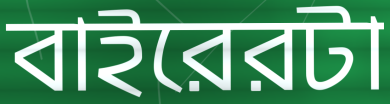
বাইরেরটা